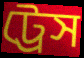
ট্রেস